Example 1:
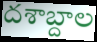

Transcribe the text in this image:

దశాబ్దాల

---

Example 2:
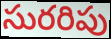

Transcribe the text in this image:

సురరిపు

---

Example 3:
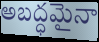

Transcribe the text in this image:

అబద్ధమైనా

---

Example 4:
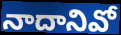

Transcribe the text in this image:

నాదానివో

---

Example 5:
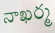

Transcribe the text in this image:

నాఖర్మ